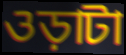
ওড়াটা